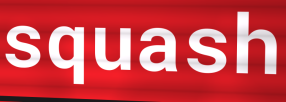
squash